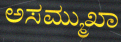
ಅಸಮ್ಮುಖಾ